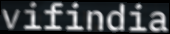
vifindia